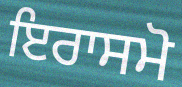
ਇਰਾਸਮੋ